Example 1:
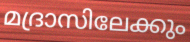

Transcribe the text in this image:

മദ്രാസിലേക്കും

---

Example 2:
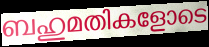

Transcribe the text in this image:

ബഹുമതികളോടെ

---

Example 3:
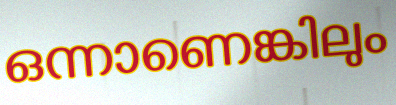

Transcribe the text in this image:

ഒന്നാണെങ്കിലും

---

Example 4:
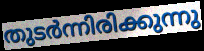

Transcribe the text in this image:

തുടർന്നിരിക്കുന്നു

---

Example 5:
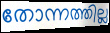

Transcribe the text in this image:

തോന്നത്തില്ല